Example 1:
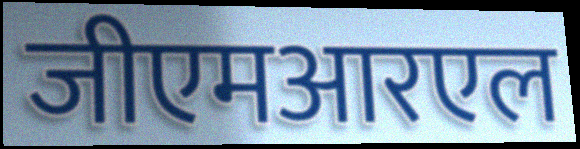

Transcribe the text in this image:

जीएमआरएल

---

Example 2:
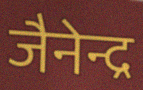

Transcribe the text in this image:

जैनेन्द्र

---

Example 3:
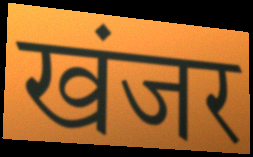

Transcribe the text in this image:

खंजर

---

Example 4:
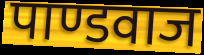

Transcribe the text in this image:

पाण्डवाज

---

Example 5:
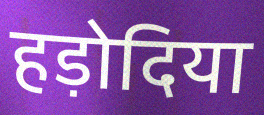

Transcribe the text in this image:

हड़ोदिया